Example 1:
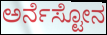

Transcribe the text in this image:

ಅರ್ನೆಸ್ಟೋನ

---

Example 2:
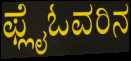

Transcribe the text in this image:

ಫ್ಲೈಓವರಿನ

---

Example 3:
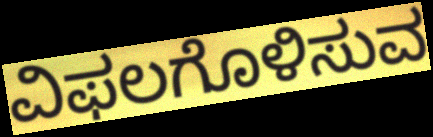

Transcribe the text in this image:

ವಿಫಲಗೊಳಿಸುವ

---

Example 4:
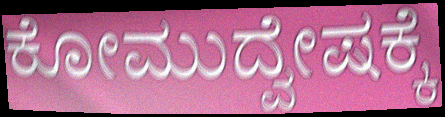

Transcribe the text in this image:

ಕೋಮುದ್ವೇಷಕ್ಕೆ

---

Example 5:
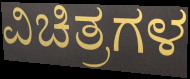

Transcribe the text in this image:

ವಿಚಿತ್ರಗಳ